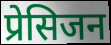
प्रेसिजन